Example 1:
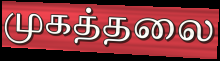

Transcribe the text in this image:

முகத்தலை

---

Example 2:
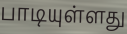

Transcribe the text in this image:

பாடியுள்ளது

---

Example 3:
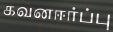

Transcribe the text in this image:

கவனஈர்ப்பு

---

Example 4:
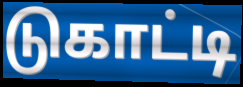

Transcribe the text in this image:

டுகாட்டி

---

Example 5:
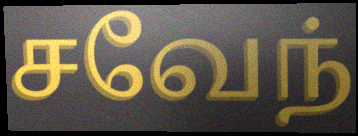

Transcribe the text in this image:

சவேந்